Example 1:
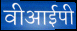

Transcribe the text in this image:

वीआईपी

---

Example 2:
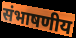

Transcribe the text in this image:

संभाषणीय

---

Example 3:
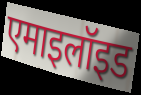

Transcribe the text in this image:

एमाइलॉइड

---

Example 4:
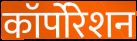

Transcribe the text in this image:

कॉर्पोरेशन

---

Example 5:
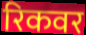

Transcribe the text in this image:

रिकवर